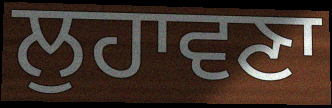
ਲੁਹਾਵਣਾ